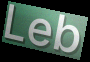
Leb